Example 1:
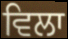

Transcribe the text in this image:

ਵਿਲਾ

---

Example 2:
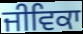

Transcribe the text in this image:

ਜੀਵਿਕਾ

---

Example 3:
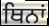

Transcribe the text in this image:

ਥਿਨਾਂ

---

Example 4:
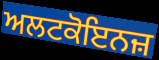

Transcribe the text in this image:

ਅਲਟਕੋਇਨਜ਼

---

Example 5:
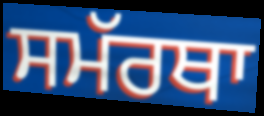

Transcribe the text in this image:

ਸਮੱਰਥਾ